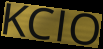
KCIO